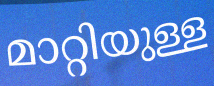
മാറ്റിയുള്ള